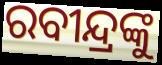
ରବୀନ୍ଦ୍ରଙ୍କୁ